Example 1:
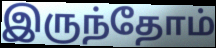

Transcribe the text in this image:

இருந்தோம்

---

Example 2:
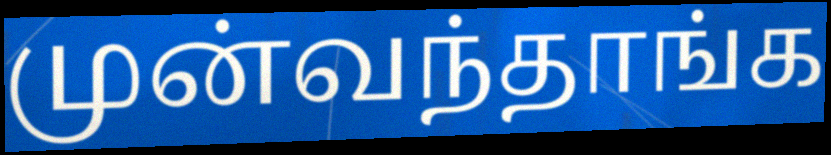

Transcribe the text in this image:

முன்வந்தாங்க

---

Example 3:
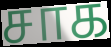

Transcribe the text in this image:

சாக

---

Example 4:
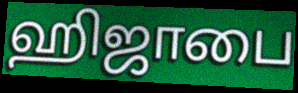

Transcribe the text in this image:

ஹிஜாபை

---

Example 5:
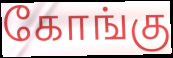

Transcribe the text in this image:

கோங்கு